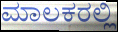
ಮಾಲಕರಲ್ಲಿ